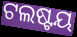
ଟଲଷ୍ଟୟ